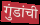
गुंडांची